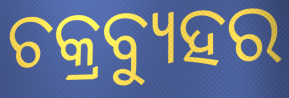
ଚକ୍ରବ୍ୟୁହର